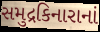
સમુદ્રકિનારાનાં